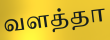
வளத்தா